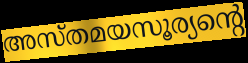
അസ്തമയസൂര്യന്റെ